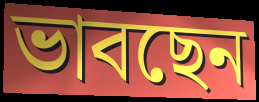
ভাবছেন